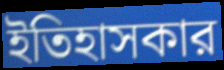
ইতিহাসকার